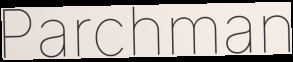
Parchman